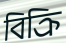
বিক্ৰি